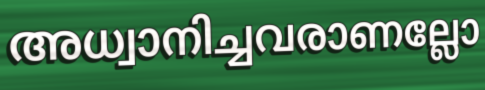
അധ്വാനിച്ചവരാണല്ലോ